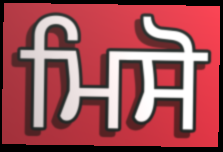
ਮਿਸੋ